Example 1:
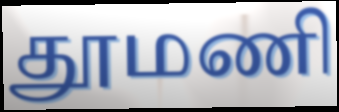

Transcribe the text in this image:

தூமணி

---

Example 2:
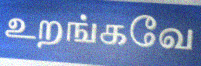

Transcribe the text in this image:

உறங்கவே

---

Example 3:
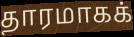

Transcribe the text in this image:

தாரமாகக்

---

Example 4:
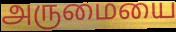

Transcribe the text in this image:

அருமையை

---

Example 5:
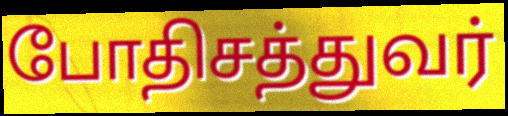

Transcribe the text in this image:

போதிசத்துவர்